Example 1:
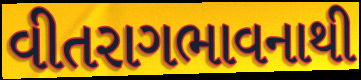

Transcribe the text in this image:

વીતરાગભાવનાથી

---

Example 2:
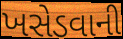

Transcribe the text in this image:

ખસેડવાની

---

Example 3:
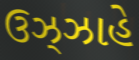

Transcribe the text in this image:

ઉઝ્ઝાહે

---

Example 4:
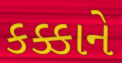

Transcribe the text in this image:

કક્કાને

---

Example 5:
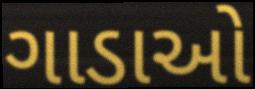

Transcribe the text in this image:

ગાડાઓ